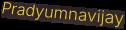
Pradyumnavijay